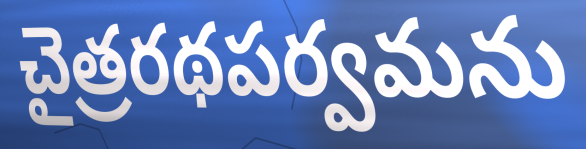
చైత్రరథపర్వమను